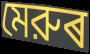
মেৰুৰ